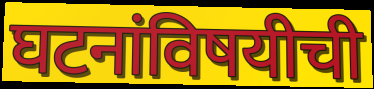
घटनांविषयीची